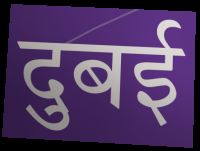
दुबई